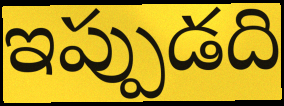
ఇప్పుడది